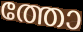
ത്തോ